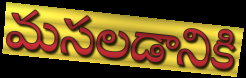
మసలడానికి